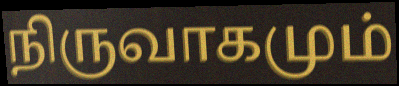
நிருவாகமும்